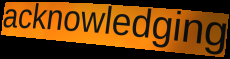
acknowledging